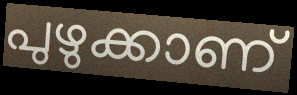
പുഴുക്കാണ്